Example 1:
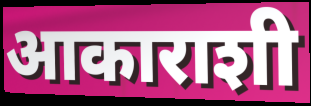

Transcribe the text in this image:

आकाराशी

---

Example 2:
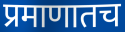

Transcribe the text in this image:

प्रमाणातच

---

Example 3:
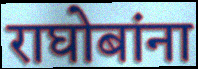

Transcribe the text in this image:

राघोबांना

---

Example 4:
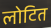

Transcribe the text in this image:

लोटित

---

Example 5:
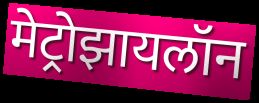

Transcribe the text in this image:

मेट्रोझायलॉन